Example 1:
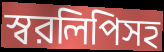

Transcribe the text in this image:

স্বরলিপিসহ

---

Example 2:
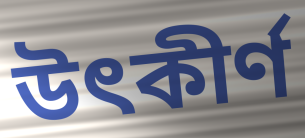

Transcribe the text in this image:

উৎকীর্ণ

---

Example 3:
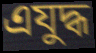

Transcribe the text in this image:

এযুদ্ধ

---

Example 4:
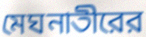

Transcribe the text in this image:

মেঘনাতীরের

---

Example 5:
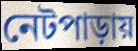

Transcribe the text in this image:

নেটপাড়ায়